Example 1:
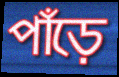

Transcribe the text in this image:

পাঁড়ে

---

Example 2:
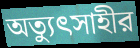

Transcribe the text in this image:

অত্যুৎসাহীর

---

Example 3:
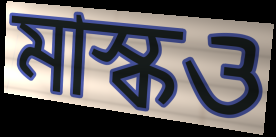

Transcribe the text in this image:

মাস্কও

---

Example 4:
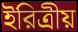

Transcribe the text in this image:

ইরিত্রীয়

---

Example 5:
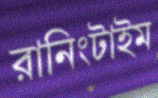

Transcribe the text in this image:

রানিংটাইম